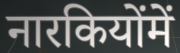
नारकियोंमें